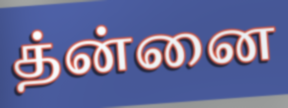
த்ன்னை